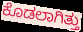
ಕೊಡಲಾಗಿತ್ತು